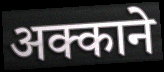
अक्काने